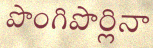
పొంగిపొర్లినా